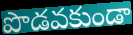
పొడవకుండా